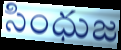
సింధుజ